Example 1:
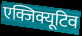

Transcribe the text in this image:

एक्जिक्यूटिव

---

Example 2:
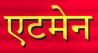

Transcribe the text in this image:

एटमेन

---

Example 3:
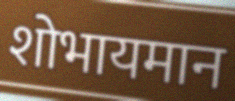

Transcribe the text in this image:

शोभायमान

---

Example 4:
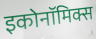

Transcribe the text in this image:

इकोनॉमिक्स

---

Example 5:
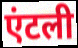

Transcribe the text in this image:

एंटली